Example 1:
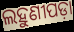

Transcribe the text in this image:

ଲହୁଣୀପଡ଼ା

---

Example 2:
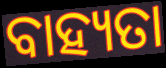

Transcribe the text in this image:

ବାହ୍ୟତା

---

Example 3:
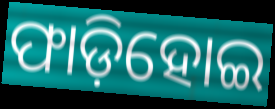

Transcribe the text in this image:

ଫାଡ଼ିହୋଇ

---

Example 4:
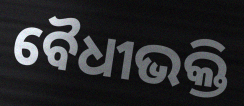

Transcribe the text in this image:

ବୈଧୀଭକ୍ତି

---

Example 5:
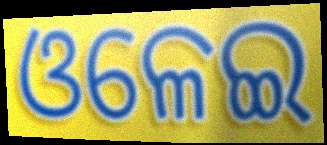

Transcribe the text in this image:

ଓଳେଇ